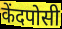
केंदपोसी